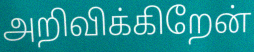
அறிவிக்கிறேன்